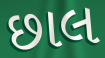
છાલ